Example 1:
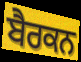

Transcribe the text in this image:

ਬੈਰਕਨ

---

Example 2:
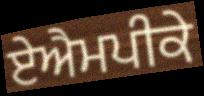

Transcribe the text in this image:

ਏਐਮਪੀਕੇ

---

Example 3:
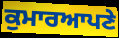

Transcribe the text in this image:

ਕੁਮਾਰਆਪਣੇ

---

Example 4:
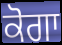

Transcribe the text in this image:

ਕੋਗਾ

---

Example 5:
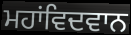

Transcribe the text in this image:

ਮਹਾਂਵਿਦਵਾਨ